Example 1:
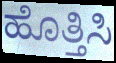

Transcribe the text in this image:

ಹೊತ್ತಿಸಿ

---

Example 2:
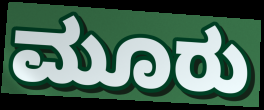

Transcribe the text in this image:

ಮೂರು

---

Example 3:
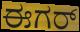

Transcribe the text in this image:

ಈಗರ್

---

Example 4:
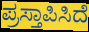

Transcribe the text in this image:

ಪ್ರಸ್ತಾಪಿಸಿದೆ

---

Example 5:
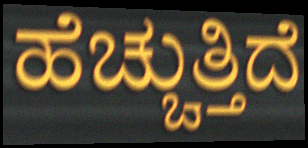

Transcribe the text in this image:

ಹೆಚ್ಚುತ್ತಿದೆ